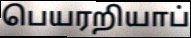
பெயரறியாப்